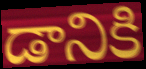
డానికి